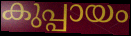
കുപ്പായം